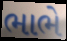
ભાભે